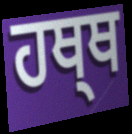
ਹਥ੍ਥ